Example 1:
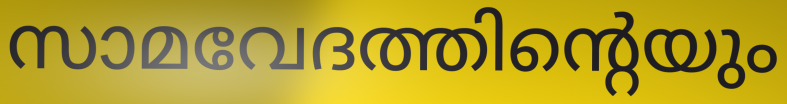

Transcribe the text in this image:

സാമവേദത്തിന്റെയും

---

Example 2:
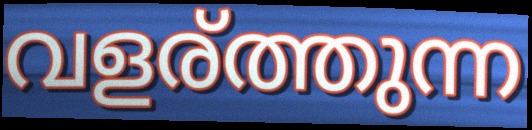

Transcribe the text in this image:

വളര്ത്തുന്ന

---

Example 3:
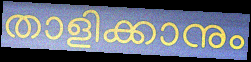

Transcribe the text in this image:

താളിക്കാനും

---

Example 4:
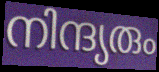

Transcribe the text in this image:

നിന്ദ്യരും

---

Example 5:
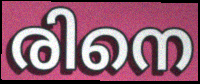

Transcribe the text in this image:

രിനെ